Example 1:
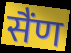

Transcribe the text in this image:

सैंण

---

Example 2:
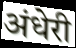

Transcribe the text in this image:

अंधेरी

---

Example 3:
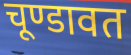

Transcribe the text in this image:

चूण्डावत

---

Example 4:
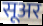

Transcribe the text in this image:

सूअर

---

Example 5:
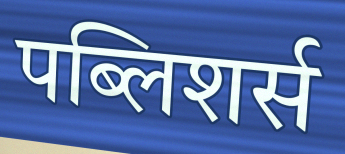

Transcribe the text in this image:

पब्लिशर्स